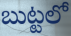
బుట్టలో